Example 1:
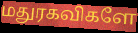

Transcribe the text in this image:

மதுரகவிகளே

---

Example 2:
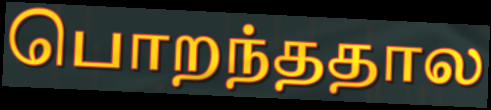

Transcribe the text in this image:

பொறந்ததால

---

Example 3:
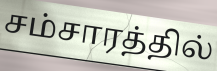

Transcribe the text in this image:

சம்சாரத்தில்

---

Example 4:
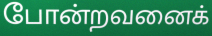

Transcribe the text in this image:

போன்றவனைக்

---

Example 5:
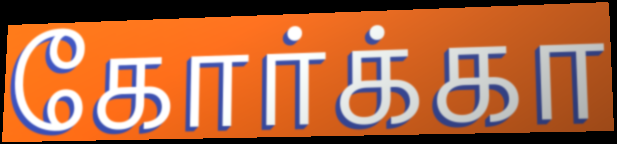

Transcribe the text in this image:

கோர்க்கா